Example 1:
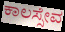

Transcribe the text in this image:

ಕಾಲಸ್ಸೇವ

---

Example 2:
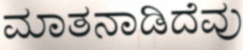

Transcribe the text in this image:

ಮಾತನಾಡಿದೆವು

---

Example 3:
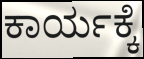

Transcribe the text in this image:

ಕಾರ್ಯಕ್ಕೆ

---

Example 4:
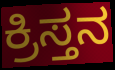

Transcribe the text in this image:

ಕ್ರಿಸ್ತನ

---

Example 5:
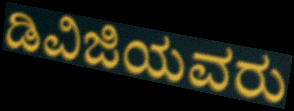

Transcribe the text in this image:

ಡಿವಿಜಿಯವರು